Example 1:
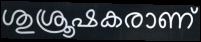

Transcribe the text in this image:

ശുശ്രൂഷകരാണ്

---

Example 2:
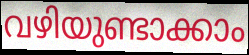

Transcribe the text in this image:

വഴിയുണ്ടാക്കാം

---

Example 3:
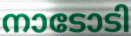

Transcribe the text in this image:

നാടോടി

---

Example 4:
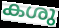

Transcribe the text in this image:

കശു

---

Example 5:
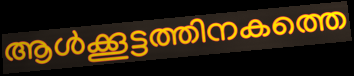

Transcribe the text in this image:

ആൾക്കൂട്ടത്തിനകത്തെ